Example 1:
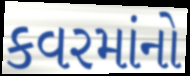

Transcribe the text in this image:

કવરમાંનો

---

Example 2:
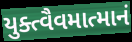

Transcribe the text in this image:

યુક્ત્વૈવમાત્માનં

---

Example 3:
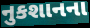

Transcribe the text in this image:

નુકશાનના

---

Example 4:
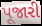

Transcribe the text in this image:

પૂજારી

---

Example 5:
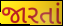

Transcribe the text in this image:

જારતાં